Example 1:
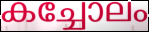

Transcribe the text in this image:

കച്ചോലം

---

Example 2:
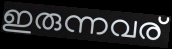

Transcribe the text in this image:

ഇരുന്നവര്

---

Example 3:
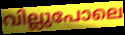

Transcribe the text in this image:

വില്ലുപോലെ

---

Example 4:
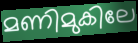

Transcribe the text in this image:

മണിമുകിലേ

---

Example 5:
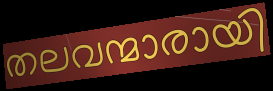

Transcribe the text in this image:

തലവന്മാരായി